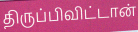
திருப்பிவிட்டான்